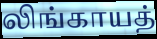
லிங்காயத்